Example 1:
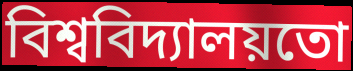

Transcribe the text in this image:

বিশ্ববিদ্যালয়তো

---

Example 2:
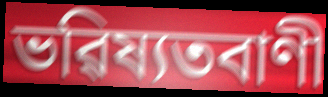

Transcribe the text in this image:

ভৱিষ্যতবাণী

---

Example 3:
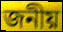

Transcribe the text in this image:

জনীয়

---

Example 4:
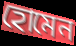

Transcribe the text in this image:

হোমেন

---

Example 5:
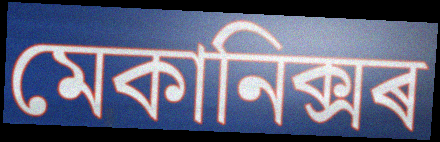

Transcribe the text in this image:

মেকানিক্সৰ